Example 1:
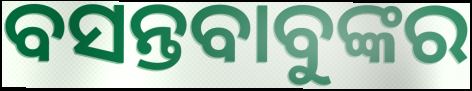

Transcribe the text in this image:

ବସନ୍ତବାବୁଙ୍କର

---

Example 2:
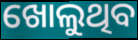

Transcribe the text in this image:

ଖୋଲୁଥିବ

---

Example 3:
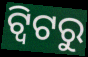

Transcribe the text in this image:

ଟ୍ବିଟରୁ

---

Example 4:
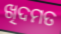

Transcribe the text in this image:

ଖିଦମତ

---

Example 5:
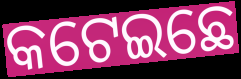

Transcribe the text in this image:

କଟେଇଛେ